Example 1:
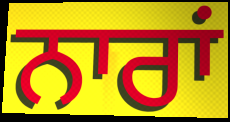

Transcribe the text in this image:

ਨਾਰਾਂ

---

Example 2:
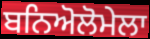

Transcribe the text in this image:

ਬਨਿਅੋਲੋਮੇਲਾ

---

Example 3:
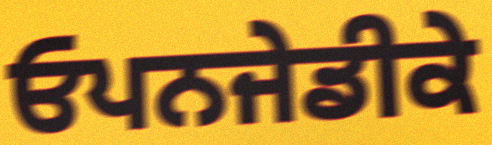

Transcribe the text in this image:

ਓਪਨਜੇਡੀਕੇ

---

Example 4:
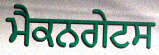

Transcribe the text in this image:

ਮੈਕਨਗੇਟਸ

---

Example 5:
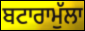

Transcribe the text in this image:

ਬਟਾਰਾਮੁੱਲਾ